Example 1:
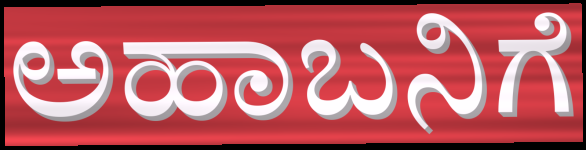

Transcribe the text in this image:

ಅಹಾಬನಿಗೆ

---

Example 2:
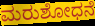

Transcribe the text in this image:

ಮರುಶೋಧನೆ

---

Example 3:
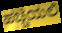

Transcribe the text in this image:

ಹಚ್ಚೆಯಲಿ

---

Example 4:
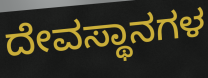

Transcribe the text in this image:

ದೇವಸ್ಥಾನಗಳ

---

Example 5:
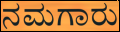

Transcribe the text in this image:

ನಮಗಾರು